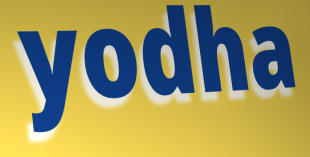
yodha